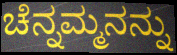
ಚೆನ್ನಮ್ಮನನ್ನು